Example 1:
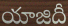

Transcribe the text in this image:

యాజిదీ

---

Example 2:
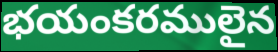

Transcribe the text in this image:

భయంకరములైన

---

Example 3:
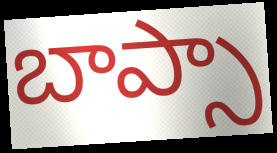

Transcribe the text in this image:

బాప్సా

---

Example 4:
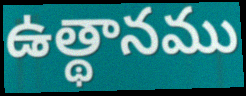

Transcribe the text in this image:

ఉత్థానము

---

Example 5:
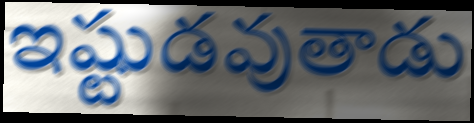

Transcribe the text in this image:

ఇష్టుడవుతాడు